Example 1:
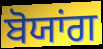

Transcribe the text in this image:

ਬੋਯਾਂਗ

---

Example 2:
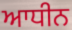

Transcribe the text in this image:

ਆਧੀਨ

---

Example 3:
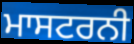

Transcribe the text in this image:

ਮਾਸਟਰਨੀ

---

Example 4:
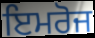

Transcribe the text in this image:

ਇਮਰੋਜ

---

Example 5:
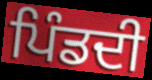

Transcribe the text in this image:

ਪਿੰਡਦੀ